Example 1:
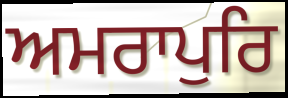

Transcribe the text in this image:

ਅਮਰਾਪੁਰਿ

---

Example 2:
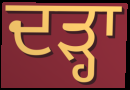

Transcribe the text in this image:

ਦੜ੍ਹਾ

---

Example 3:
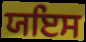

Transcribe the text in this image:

ਯਇਸ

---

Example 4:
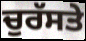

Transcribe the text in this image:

ਚੁਰੱਸਤੇ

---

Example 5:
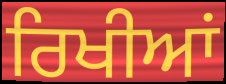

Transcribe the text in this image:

ਰਿਖੀਆਂ